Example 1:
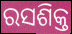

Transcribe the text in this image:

ରସଶିକ୍ତ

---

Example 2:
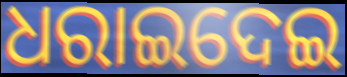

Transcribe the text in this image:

ଧରାଇଦେଇ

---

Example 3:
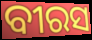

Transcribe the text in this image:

ବୀରସ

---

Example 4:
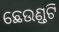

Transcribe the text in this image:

ଛେଉଣ୍ଡଟି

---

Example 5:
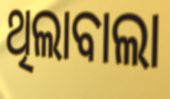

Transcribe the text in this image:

ଥିଲାବାଲା